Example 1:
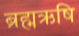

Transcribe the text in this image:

ब्रह्मऋषि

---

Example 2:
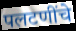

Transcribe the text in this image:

पलटणींचे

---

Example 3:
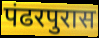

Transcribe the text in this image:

पंढरपुरास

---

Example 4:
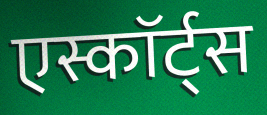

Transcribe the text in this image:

एस्कॉर्ट्स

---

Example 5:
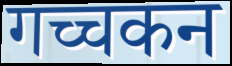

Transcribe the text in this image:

गच्चकन